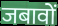
जबावों